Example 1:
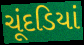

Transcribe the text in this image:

ચૂંદડિયાં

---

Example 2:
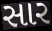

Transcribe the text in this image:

સાર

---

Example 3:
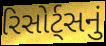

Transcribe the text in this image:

રિસોર્ટ્સનું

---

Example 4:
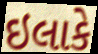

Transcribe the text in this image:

ઇલાકે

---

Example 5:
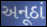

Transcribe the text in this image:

અનૂઠાં